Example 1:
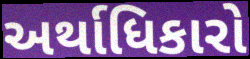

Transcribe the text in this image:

અર્થાધિકારો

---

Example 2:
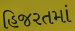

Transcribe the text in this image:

હિજરતમાં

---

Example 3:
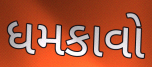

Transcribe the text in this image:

ધમકાવો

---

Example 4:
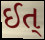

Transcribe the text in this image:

ઈત્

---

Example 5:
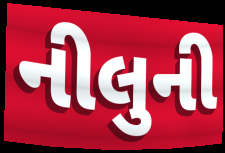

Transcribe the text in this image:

નીલુની